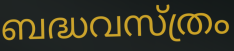
ബദ്ധവസ്ത്രം